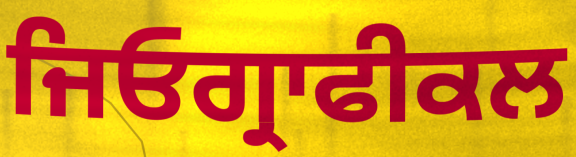
ਜਿਓਗ੍ਰਾਫੀਕਲ